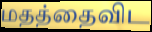
மதத்தைவிட